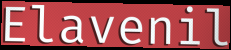
Elavenil